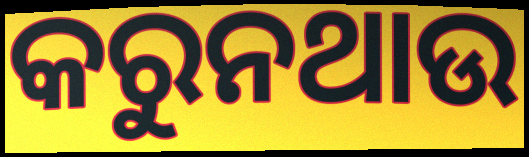
କରୁନଥାଉ